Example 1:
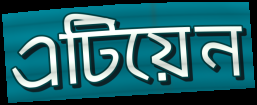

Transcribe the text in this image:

এটিয়েন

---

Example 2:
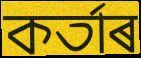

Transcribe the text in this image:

কৰ্তাৰ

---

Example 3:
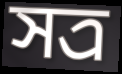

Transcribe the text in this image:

সত্ৰ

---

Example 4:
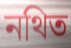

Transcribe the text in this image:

নথিত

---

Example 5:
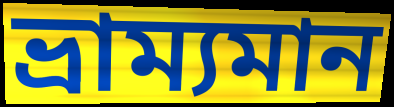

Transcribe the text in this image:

ভ্ৰাম্যমান